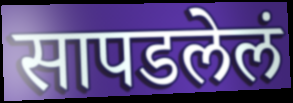
सापडलेलं